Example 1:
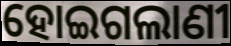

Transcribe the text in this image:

ହୋଇଗଲାଣୀ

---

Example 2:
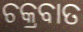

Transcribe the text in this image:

ଚକ୍ରବାତ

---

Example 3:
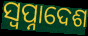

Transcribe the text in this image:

ସ୍ବପ୍ନାଦେଶ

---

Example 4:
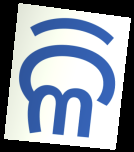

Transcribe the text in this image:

ଳି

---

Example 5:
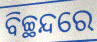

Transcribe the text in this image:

ବିଚ୍ଛନ୍ଦରେ